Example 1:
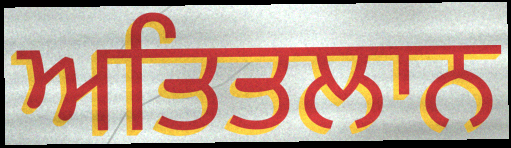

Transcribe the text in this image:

ਅਤਿਤਲਾਨ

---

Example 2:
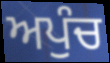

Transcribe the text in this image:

ਅਪੁੰਚ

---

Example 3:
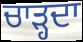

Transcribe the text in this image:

ਚਾੜ੍ਹਦਾ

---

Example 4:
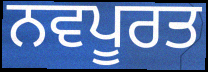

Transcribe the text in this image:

ਨਵਪੂਰਤ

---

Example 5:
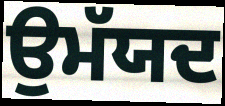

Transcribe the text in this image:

ਉਮੱਯਦ